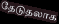
தேடுதலாக